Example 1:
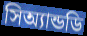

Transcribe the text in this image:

সিঅ্যান্ডডি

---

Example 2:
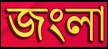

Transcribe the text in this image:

জংলা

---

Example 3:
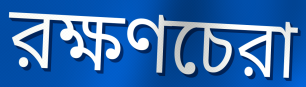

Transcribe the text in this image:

রক্ষণচেরা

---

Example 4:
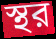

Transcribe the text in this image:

স্থর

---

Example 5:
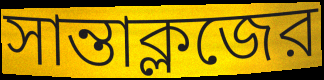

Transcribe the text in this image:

সান্তাক্লজের